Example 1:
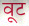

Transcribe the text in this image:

वूट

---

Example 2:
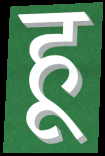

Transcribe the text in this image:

हू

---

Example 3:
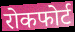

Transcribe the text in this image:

रोकफोर्ट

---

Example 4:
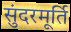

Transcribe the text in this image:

सुंदरमूर्ति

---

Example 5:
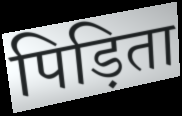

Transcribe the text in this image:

पिड़िता